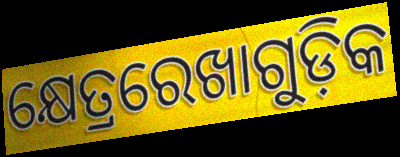
କ୍ଷେତ୍ରରେଖାଗୁଡ଼ିକ